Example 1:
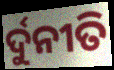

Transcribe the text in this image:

ର୍ଦୁନୀତି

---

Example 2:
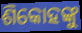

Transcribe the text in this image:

ଶିକୋହଙ୍କୁ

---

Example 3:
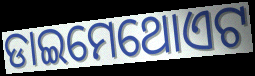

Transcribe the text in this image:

ଡାଇମେଥୋଏଟ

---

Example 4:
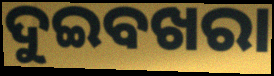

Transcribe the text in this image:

ଦୁଇବଖରା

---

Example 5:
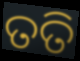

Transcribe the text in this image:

ତତି